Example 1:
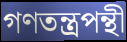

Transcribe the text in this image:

গণতন্ত্রপন্থী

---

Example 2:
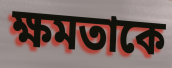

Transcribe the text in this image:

ক্ষমতাকে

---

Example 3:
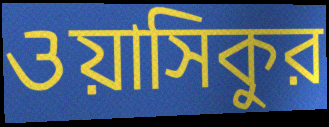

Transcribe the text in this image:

ওয়াসিকুর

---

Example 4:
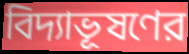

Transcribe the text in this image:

বিদ্যাভূষণের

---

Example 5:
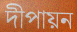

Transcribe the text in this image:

দীপায়ন